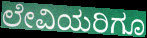
ಲೇವಿಯರಿಗೂ